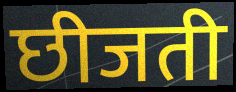
छीजती